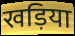
खड़िया